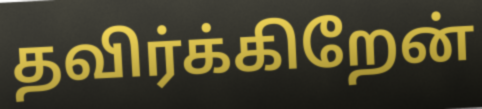
தவிர்க்கிறேன்